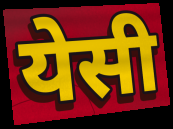
येसी